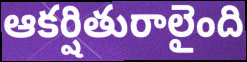
ఆకర్షితురాలైంది